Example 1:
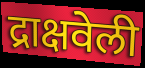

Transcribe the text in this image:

द्राक्षवेली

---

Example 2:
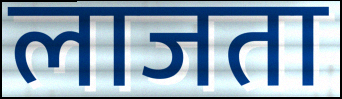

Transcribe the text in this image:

लाजता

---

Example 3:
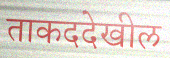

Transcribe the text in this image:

ताकददेखील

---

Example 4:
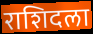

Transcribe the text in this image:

राशिदला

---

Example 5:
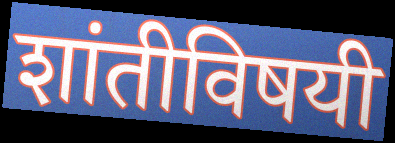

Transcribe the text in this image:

शांतीविषयी